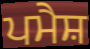
ਪਮੈਸ਼